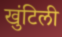
खुंटिली